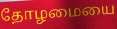
தோழமையை